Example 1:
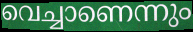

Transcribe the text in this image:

വെച്ചാണെന്നും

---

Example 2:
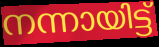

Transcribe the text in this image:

നന്നായിട്ട്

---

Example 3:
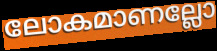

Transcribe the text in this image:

ലോകമാണല്ലോ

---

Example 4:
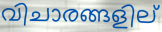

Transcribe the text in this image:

വിചാരങ്ങളില്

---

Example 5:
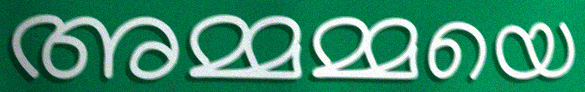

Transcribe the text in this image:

അമ്മമ്മയെ